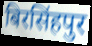
बिरसिंहपुर